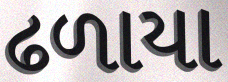
ઢળાયા